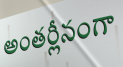
అంతర్లీనంగా